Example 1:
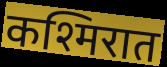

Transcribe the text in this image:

कश्मिरात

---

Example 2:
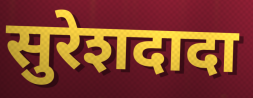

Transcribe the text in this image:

सुरेशदादा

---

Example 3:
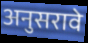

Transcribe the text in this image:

अनुसरावे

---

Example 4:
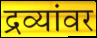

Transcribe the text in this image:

द्रव्यांवर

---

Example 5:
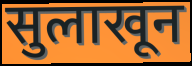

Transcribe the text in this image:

सुलाखून